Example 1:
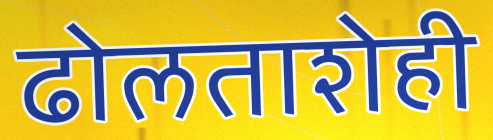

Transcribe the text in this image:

ढोलताशेही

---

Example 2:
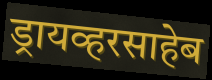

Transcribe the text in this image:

ड्रायव्हरसाहेब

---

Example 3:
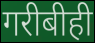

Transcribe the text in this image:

गरीबीही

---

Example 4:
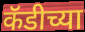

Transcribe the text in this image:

कॅडीच्या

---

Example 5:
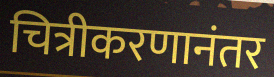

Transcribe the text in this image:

चित्रीकरणानंतर